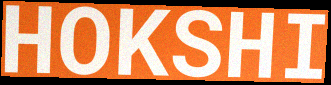
HOKSHI